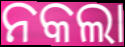
ନକଲା